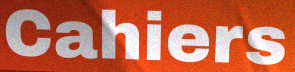
Cahiers